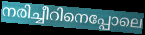
നരിച്ചീറിനെപ്പോലെ